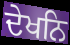
ਦੇਖਨਿ